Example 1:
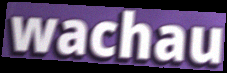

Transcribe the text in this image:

wachau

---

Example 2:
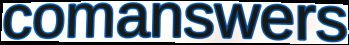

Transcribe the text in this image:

comanswers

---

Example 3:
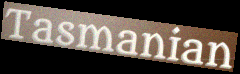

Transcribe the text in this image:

Tasmanian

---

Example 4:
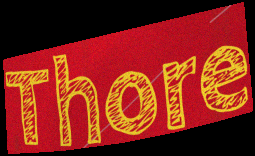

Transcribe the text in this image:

Thore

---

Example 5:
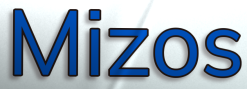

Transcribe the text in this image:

Mizos